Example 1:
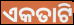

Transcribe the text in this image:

ଏକତାଟି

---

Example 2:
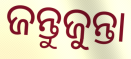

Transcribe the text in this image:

ଜନ୍ତୁଜୁନ୍ତା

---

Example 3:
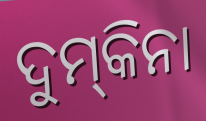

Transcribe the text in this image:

ଦୁମ୍‌କିନା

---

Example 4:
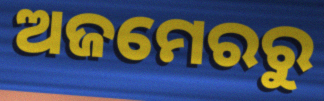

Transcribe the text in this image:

ଅଜମେରରୁ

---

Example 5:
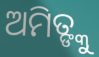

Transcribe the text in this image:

ଅମିତ୍ଙ୍କୁ